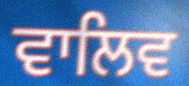
ਵਾਲਿਵ